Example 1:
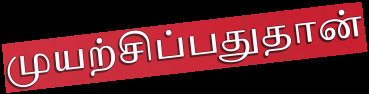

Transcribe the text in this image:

முயற்சிப்பதுதான்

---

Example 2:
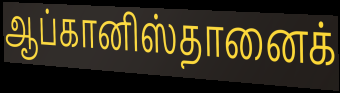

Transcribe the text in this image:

ஆப்கானிஸ்தானைக்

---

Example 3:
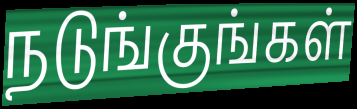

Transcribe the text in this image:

நடுங்குங்கள்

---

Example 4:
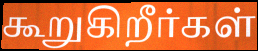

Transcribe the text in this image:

கூறுகிறீர்கள்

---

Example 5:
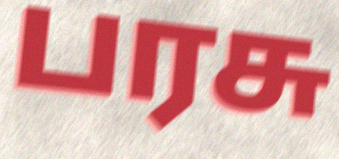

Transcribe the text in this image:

பரசு